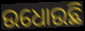
ଉଧୋଉଛି